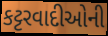
કટ્ટરવાદીઓની